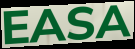
EASA